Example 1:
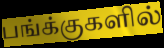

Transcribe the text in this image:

பங்க்குகளில்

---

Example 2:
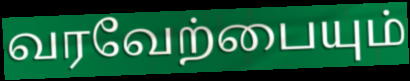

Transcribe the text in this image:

வரவேற்பையும்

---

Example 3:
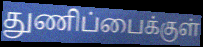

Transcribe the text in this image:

துணிப்பைக்குள்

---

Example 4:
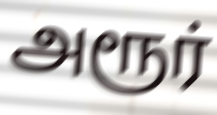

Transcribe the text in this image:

அரூர்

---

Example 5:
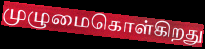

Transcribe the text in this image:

முழுமைகொள்கிறது